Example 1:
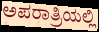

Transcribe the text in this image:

ಅಪರಾತ್ರಿಯಲ್ಲಿ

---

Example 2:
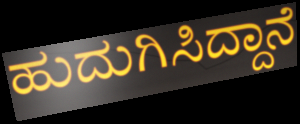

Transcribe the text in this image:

ಹುದುಗಿಸಿದ್ದಾನೆ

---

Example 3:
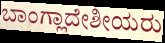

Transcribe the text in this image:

ಬಾಂಗ್ಲಾದೇಶೀಯರು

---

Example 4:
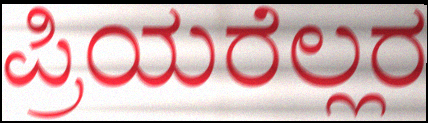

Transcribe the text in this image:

ಪ್ರಿಯರೆಲ್ಲರ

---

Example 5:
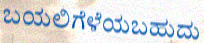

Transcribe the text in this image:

ಬಯಲಿಗೆಳೆಯಬಹುದು